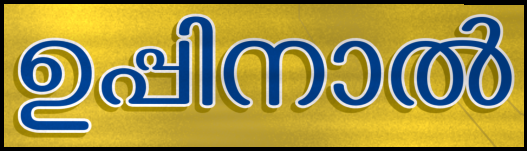
ഉപ്പിനാൽ